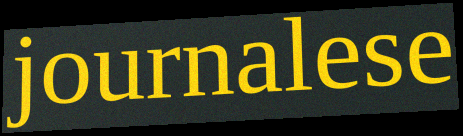
journalese